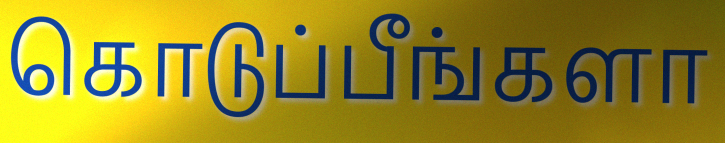
கொடுப்பீங்களா